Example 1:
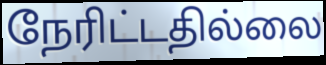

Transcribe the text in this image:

நேரிட்டதில்லை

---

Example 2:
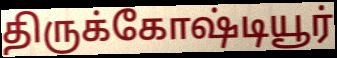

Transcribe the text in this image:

திருக்கோஷ்டியூர்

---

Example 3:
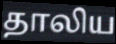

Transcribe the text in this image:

தாலிய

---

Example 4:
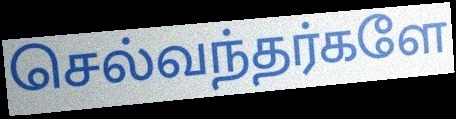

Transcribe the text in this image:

செல்வந்தர்களே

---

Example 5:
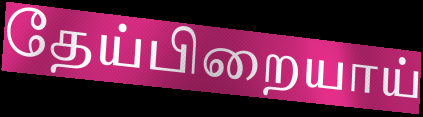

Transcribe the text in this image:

தேய்பிறையாய்